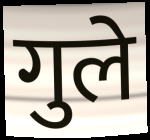
गुले